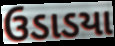
ઉડાડયા